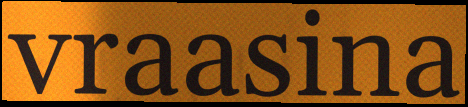
vraasina